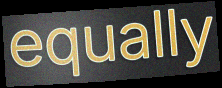
equally